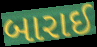
બારાઈ